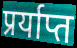
प्रर्याप्त